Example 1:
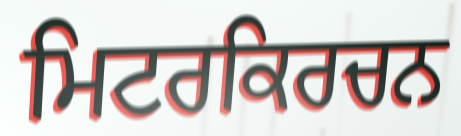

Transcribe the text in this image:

ਮਿਟਰਕਿਰਚਨ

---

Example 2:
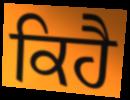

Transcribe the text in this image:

ਕਿਹੈ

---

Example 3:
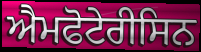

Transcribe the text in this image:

ਐਮਫੋਟੇਰੀਸਿਨ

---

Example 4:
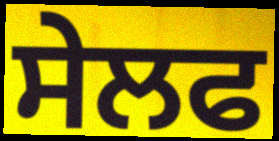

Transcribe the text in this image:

ਸੇਲਫ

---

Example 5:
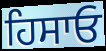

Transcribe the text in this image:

ਹਿਸਾਓ